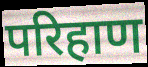
परिहाण